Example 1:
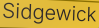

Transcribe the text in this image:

Sidgewick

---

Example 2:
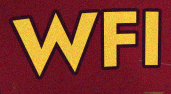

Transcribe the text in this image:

WFI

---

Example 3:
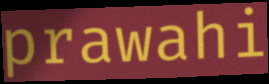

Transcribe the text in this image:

prawahi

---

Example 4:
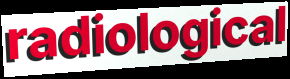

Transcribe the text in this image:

radiological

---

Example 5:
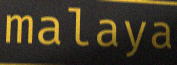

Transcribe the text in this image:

malaya